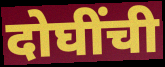
दोघींची